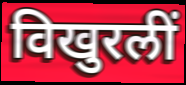
विखुरलीं